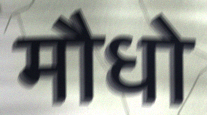
मौधो